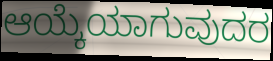
ಆಯ್ಕೆಯಾಗುವುದರ